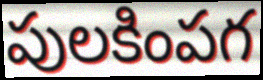
పులకింపగ